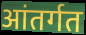
आंतर्गत